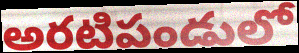
అరటిపండులో